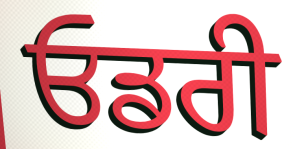
ਓਡਰੀ